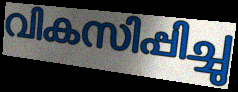
വികസിപ്പിച്ചു